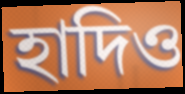
হাদিও